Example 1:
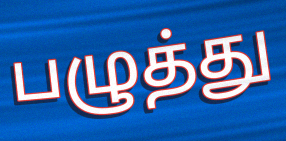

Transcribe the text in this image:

பழுத்து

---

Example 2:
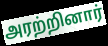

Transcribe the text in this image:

அரற்றினார்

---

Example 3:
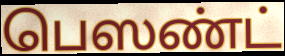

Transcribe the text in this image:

பெஸண்ட்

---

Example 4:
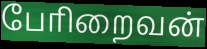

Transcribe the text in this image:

பேரிறைவன்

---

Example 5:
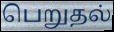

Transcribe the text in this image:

பெறுதல்